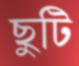
ছুটি